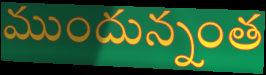
ముందున్నంత